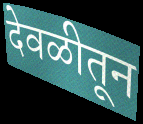
देवळीतून